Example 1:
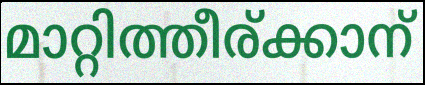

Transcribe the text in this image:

മാറ്റിത്തീര്ക്കാന്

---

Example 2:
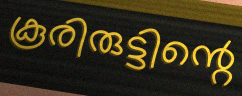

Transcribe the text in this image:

കൂരിരുട്ടിന്റെ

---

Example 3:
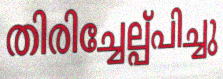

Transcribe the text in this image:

തിരിച്ചേല്പ്പിച്ചു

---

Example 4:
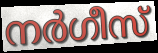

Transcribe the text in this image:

നർഗീസ്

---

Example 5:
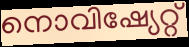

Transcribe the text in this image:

നൊവിഷ്യേറ്റ്